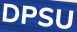
DPSU